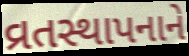
વ્રતસ્થાપનાને